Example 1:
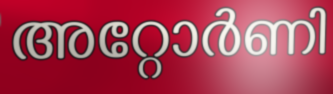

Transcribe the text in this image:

അറ്റോർണി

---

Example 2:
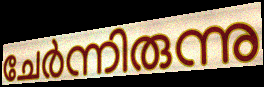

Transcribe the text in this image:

ചേർന്നിരുന്നു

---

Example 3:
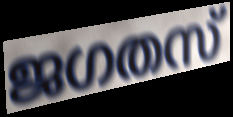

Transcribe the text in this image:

ജഗതസ്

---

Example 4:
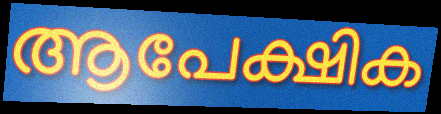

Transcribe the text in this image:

ആപേക്ഷിക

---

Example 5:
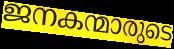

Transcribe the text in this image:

ജനകന്മാരുടെ